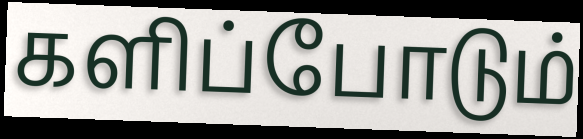
களிப்போடும்